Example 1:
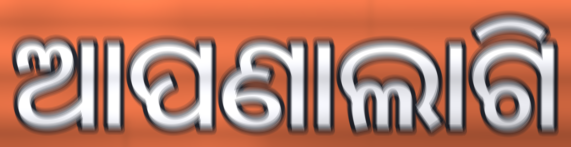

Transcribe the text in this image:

ଆପଣାଲାଗି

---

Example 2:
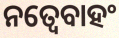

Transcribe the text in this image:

ନତ୍ୱେବାହଂ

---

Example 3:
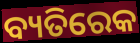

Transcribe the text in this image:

ବ୍ୟତିରେକ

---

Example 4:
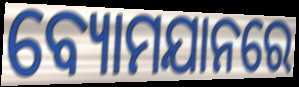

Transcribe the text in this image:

ବ୍ୟୋମଯାନରେ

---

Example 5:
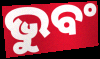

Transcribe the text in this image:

ଭୁବଂ